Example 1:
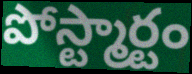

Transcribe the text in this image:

పోస్ట్మార్టం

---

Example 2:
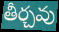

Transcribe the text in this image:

తీర్చవు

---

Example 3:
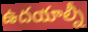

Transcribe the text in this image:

ఉదయాల్నీ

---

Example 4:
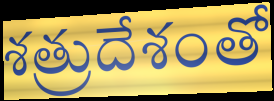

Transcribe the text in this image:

శత్రుదేశంతో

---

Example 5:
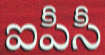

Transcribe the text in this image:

ఐపీసీ